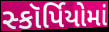
સ્કૉર્પિયોમાં